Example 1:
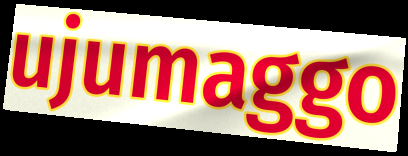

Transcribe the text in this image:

ujumaggo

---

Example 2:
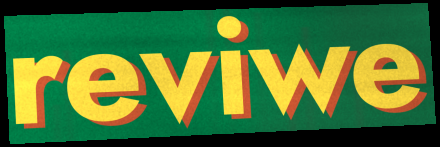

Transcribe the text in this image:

reviwe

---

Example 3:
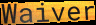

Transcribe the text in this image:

Waiver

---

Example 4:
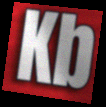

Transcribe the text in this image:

Kb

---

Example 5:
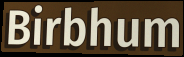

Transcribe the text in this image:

Birbhum